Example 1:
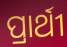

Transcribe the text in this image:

ପ୍ରାର୍ଥୀ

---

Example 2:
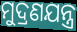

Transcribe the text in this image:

ମୁଦ୍ରଣଯନ୍ତ୍ର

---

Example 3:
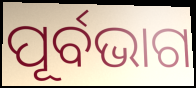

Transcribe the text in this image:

ପୂର୍ବଭାଗ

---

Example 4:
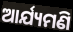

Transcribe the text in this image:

ଆର୍ଯ୍ୟମଣି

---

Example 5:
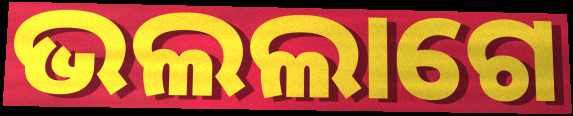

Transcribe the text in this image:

ଭଲଲାଗେ